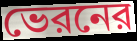
ভেরনের